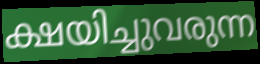
ക്ഷയിച്ചുവരുന്ന